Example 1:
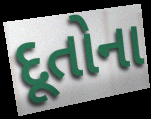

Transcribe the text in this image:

દૂતોના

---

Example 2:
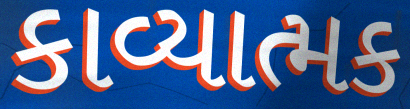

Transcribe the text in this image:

કાવ્યાત્મક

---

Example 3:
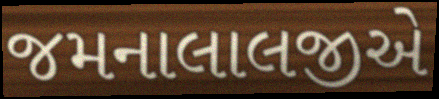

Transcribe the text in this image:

જમનાલાલજીએ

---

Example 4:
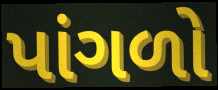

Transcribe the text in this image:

પાંગળો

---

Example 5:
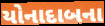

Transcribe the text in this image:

યોનાદાબના